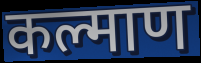
कल्माण